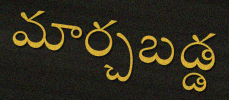
మార్చబడ్డ